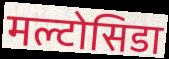
मल्टोसिडा